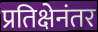
प्रतिक्षेनंतर